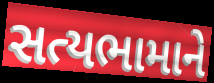
સત્યભામાને